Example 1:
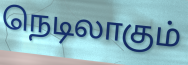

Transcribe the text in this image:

நெடிலாகும்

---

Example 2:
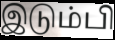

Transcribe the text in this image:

இடும்பி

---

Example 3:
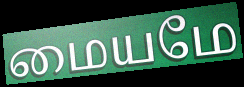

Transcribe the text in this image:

மையமே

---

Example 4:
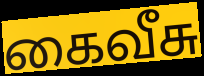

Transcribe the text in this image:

கைவீசு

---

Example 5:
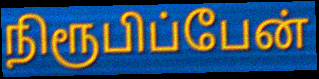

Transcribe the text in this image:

நிரூபிப்பேன்